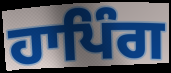
ਹਾਪਿੰਗ